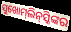
ସୁଖୋମ୍‍ଲିନ୍‍ସ୍କିଙ୍କର